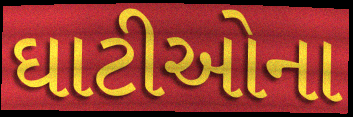
ઘાટીઓના